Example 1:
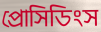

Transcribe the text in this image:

প্রোসিডিংস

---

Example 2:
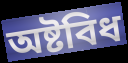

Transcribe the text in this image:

অষ্টবিধ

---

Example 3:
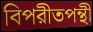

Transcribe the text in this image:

বিপরীতপন্থী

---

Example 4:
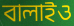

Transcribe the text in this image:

বালাইও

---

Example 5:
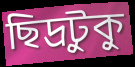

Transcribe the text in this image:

ছিদ্রটুকু